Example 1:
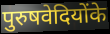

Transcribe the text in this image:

पुरुषवेदियोंके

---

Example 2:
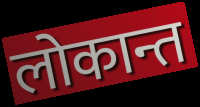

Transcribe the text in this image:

लोकान्त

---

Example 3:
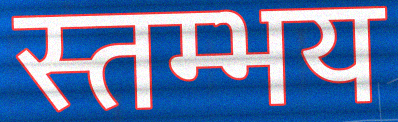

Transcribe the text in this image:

स्तम्भय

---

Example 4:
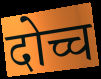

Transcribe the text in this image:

दोच्च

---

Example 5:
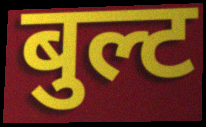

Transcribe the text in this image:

बुल्ट